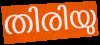
തിരിയു